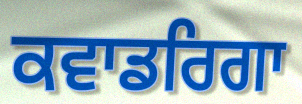
ਕਵਾਡਰਿਗਾ